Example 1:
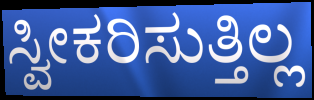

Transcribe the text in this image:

ಸ್ವೀಕರಿಸುತ್ತಿಲ್ಲ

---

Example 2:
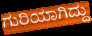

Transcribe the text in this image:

ಗುರಿಯಾಗಿದ್ದು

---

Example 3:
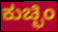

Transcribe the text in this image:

ಕುಚ್ಛಿಂ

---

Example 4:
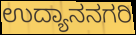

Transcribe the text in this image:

ಉದ್ಯಾನನಗರಿ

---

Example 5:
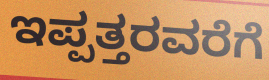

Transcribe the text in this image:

ಇಪ್ಪತ್ತರವರೆಗೆ